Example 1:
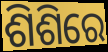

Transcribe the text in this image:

ଶିଶିରେ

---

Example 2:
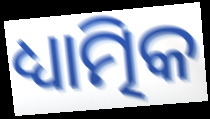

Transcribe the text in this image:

ଧ୍ୟାତ୍ମିକ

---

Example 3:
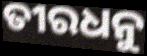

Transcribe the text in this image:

ତୀରଧନୁ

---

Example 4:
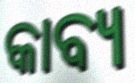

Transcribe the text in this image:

କାବ୍ୟ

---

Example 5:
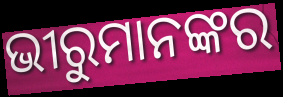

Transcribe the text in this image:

ଭୀରୁମାନଙ୍କର